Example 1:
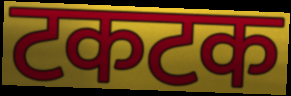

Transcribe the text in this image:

टकटक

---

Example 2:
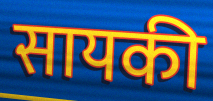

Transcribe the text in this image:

सायकी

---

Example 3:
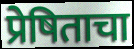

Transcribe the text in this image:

प्रेषिताचा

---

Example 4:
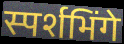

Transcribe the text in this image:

स्पर्शभिंगे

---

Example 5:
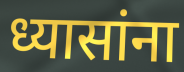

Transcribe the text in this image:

ध्यासांना